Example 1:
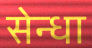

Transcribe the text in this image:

सेन्धा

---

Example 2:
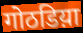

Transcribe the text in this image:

गोठडिय़ा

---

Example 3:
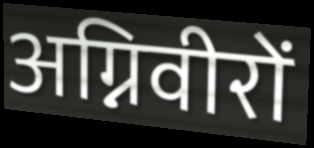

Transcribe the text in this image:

अग्निवीरों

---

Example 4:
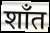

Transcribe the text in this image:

शाँत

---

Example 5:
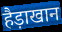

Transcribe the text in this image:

हैड़ाखान